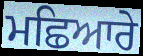
ਮਛਿਆਰੇ